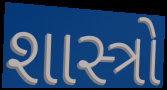
શાસ્ત્રો